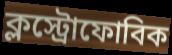
ক্লস্ট্রোফোবিক